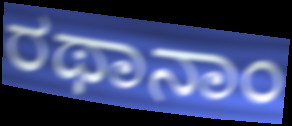
ರಥಾನಾಂ